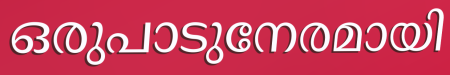
ഒരുപാടുനേരമായി